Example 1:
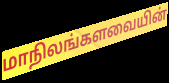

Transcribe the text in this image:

மாநிலங்களவையின்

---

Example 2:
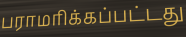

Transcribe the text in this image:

பராமரிக்கப்பட்டது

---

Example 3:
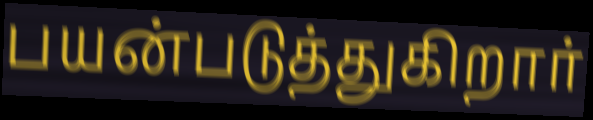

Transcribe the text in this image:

பயன்படுத்துகிறார்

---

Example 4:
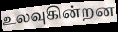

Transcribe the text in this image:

உலவுகின்றன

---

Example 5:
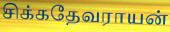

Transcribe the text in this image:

சிக்கதேவராயன்